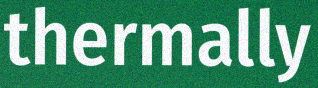
thermally